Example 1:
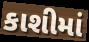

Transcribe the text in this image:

કાશીમાં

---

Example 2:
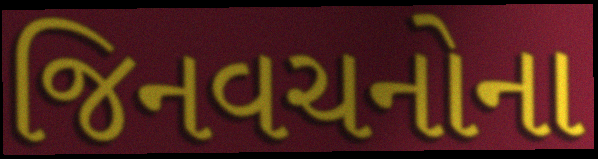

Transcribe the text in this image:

જિનવચનોના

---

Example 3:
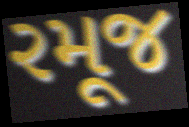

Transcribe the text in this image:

રમૂજ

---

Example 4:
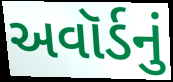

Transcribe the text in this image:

અવૉર્ડનું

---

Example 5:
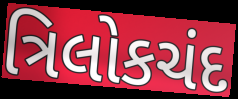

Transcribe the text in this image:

ત્રિલોકચંદ